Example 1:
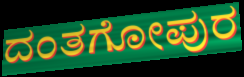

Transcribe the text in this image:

ದಂತಗೋಪುರ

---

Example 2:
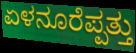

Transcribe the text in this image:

ಏಳನೂರೆಪ್ಪತ್ತು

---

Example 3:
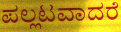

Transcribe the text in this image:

ಪಲ್ಲಟವಾದರೆ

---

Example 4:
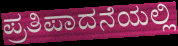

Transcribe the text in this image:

ಪ್ರತಿಪಾದನೆಯಲ್ಲಿ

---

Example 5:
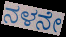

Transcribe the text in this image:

ನಳನೇ